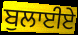
ਬੁਲਾਈਏ